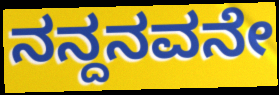
ನನ್ದನವನೇ